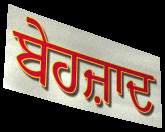
ਬੇਹਜ਼ਾਦ